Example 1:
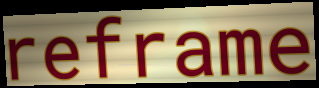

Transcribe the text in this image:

reframe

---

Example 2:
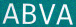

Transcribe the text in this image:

ABVA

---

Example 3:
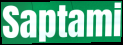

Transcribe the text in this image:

Saptami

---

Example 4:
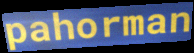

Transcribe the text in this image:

pahorman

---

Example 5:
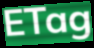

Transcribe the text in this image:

ETag